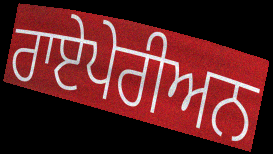
ਰਾਏਪੇਰੀਅਨ